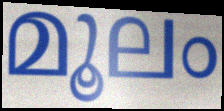
മൂലം